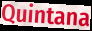
Quintana